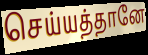
செய்யத்தானே